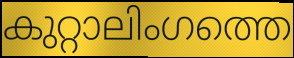
കുറ്റാലിംഗത്തെ